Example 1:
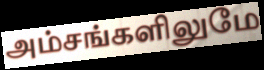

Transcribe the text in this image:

அம்சங்களிலுமே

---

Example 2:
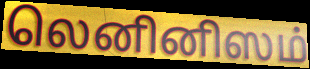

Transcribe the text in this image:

லெனினிஸம்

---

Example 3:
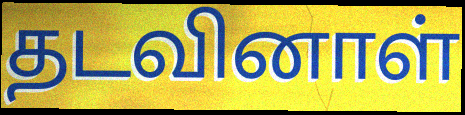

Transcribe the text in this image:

தடவினாள்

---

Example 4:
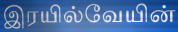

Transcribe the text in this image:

இரயில்வேயின்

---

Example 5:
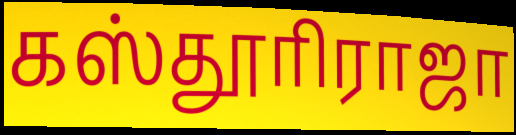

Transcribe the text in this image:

கஸ்தூரிராஜா